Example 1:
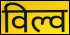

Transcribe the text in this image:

विल्व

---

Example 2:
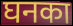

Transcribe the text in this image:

घनका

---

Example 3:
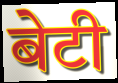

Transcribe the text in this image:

बेटी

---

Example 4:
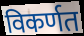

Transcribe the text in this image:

विकर्णत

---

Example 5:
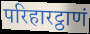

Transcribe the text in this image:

परिहारट्ठाणं